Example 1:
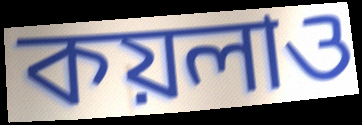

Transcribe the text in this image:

কয়লাও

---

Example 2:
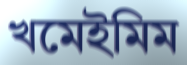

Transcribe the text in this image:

খমেইমিম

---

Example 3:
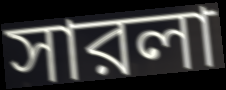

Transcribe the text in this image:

সারলা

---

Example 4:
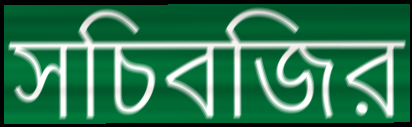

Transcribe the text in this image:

সচিবজির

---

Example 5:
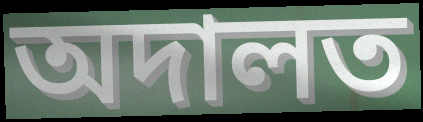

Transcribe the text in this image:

অদালত